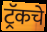
ट्रॅकचे